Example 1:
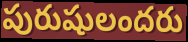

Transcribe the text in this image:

పురుషులందరు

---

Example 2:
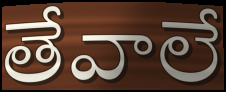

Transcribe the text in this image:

తేవాలే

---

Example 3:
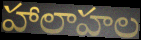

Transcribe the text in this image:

హాలాహల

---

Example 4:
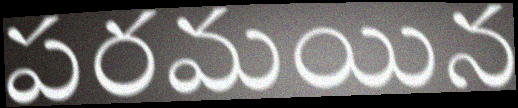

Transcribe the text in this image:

పరమయిన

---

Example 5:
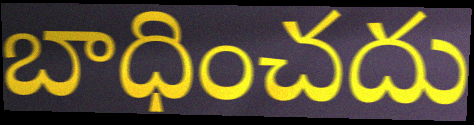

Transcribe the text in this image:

బాధించదు